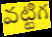
వట్టిగ